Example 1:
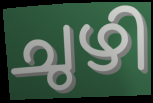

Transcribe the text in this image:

ചുഴി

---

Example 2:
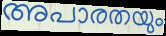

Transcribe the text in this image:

അപാരതയും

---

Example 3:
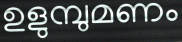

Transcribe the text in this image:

ഉളുമ്പുമണം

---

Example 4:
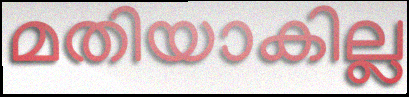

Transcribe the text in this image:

മതിയാകില്ല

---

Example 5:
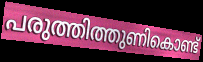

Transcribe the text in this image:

പരുത്തിത്തുണികൊണ്ട്